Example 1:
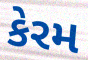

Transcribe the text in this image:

કેરમ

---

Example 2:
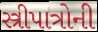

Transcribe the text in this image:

સ્ત્રીપાત્રોની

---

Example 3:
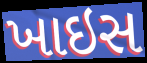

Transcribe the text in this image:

ખાઇસ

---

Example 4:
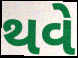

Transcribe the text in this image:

થવે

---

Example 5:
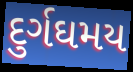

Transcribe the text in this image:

દુર્ગઘમય